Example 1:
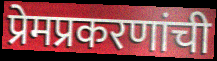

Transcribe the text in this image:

प्रेमप्रकरणांची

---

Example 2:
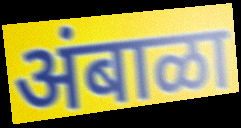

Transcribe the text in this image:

अंबाळा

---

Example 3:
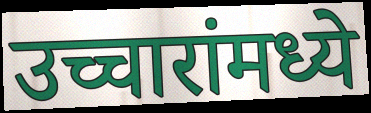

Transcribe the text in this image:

उच्चारांमध्ये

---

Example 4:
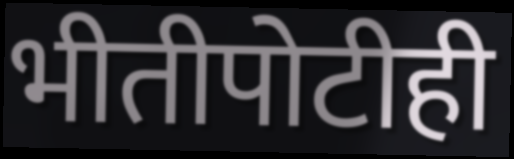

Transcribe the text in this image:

भीतीपोटीही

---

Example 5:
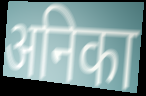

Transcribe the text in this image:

अनिका